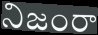
నిజంరా